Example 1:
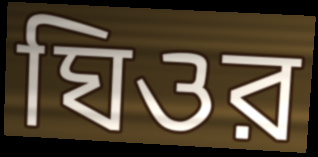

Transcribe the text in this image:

ঘিওর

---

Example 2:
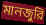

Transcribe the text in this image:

মানজুরি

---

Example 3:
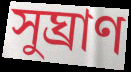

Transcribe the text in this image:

সুঘ্রাণ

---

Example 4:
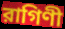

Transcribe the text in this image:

রাগিণী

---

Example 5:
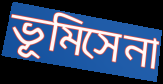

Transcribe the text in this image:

ভূমিসেনা